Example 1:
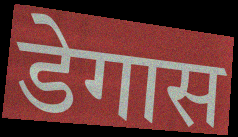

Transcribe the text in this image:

डेगास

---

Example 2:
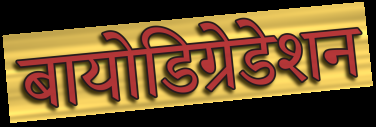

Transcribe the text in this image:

बायोडिग्रेडेशन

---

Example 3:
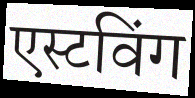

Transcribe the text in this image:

एस्टविंग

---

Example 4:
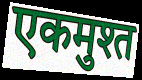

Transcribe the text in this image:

एकमुश्‍त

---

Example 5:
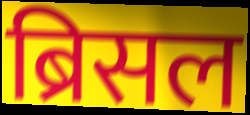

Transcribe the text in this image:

ब्रिसल